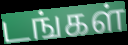
டங்கள்